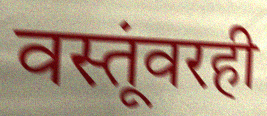
वस्तूंवरही